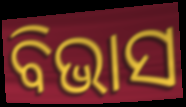
ବିଭାସ